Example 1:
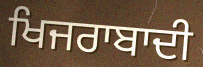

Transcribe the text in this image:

ਖਿਜਰਾਬਾਦੀ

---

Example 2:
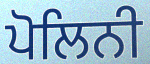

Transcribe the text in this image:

ਪੋਲਿਨੀ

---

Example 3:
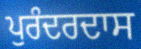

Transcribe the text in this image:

ਪੁਰੰਦਰਦਾਸ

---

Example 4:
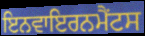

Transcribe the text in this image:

ਇਨਵਾਇਰਨਮੈਂਟਸ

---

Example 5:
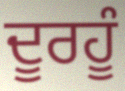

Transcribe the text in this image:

ਦੂਰਹੂੰ